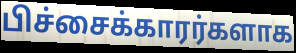
பிச்சைக்காரர்களாக